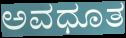
ಅವಧೂತ